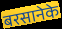
बरसानेके